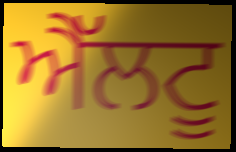
ਐੱਲਟੂ